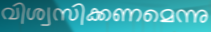
വിശ്വസിക്കണമെന്നു